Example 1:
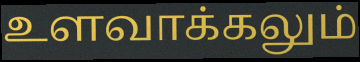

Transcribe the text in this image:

உளவாக்கலும்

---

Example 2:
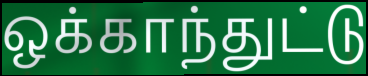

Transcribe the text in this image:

ஒக்காந்துட்டு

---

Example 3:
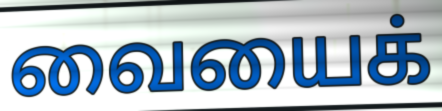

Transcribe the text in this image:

வையைக்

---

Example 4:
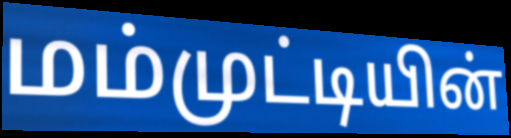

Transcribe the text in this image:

மம்முட்டியின்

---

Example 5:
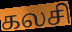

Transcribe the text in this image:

கலசி